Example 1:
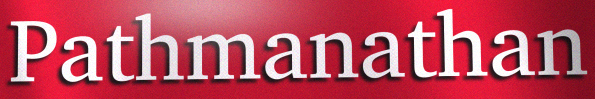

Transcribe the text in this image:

Pathmanathan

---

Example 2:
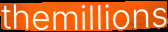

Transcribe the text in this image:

themillions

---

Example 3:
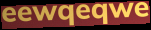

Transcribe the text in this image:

eewqeqwe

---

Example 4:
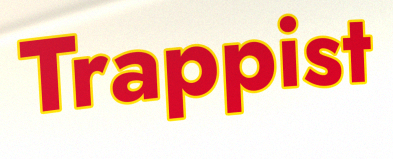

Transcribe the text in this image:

Trappist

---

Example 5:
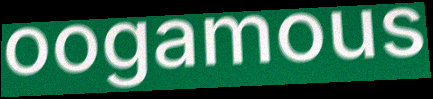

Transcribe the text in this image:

oogamous